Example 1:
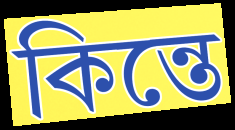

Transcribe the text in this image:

কিন্তে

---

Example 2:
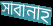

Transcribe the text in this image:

সাবানাহ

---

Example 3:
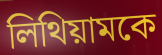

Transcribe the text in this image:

লিথিয়ামকে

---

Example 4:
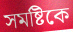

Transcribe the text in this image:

সমষ্টিকে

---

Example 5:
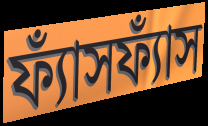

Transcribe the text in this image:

ফ্যাঁসফ্যাঁস